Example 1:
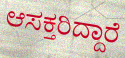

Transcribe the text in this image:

ಆಸಕ್ತರಿದ್ದಾರೆ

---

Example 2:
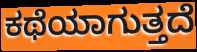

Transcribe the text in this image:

ಕಥೆಯಾಗುತ್ತದೆ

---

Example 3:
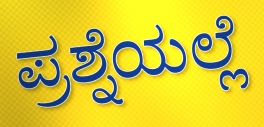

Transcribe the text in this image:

ಪ್ರಶ್ನೆಯಲ್ಲೆ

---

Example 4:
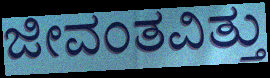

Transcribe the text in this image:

ಜೀವಂತವಿತ್ತು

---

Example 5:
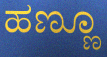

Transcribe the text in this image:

ಹಣ್ಣೂ